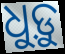
ଧୁଡ଼ୁ